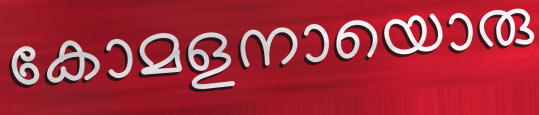
കോമളനായൊരു